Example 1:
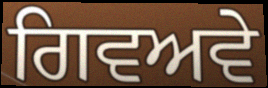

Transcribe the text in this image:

ਗਿਵਅਵੇ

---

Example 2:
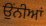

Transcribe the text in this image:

ਉੰਨੀਆਂ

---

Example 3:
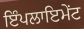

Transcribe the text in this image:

ਇੰਪਲਾਇਮੇਂਟ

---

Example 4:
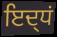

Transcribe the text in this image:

ਇਦ੍ਧਂ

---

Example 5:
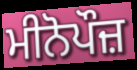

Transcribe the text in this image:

ਮੀਨੋਪੌਜ਼